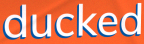
ducked